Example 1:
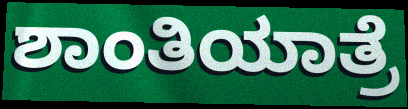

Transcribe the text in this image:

ಶಾಂತಿಯಾತ್ರೆ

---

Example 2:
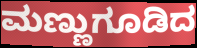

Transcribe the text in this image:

ಮಣ್ಣುಗೂಡಿದ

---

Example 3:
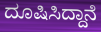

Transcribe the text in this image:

ದೂಷಿಸಿದ್ದಾನೆ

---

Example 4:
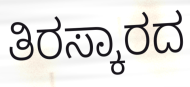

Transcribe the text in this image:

ತಿರಸ್ಕಾರದ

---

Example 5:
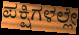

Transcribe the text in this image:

ಪಕ್ಷಿಗಳಲ್ಲೇ